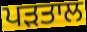
ਪੜਤਾਲ